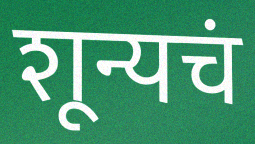
शून्यचं